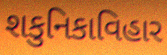
શકુનિકાવિહાર